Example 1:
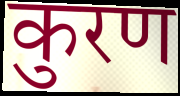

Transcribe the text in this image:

कुरण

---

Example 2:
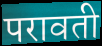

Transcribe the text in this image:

परावती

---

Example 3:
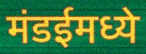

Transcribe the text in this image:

मंडईमध्ये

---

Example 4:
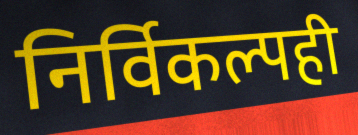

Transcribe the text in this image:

निर्विकल्पही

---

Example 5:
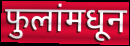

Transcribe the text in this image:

फुलांमधून